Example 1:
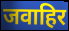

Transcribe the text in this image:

जवाहिर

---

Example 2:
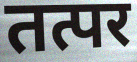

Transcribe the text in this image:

तत्पर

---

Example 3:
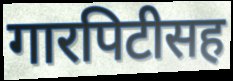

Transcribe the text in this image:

गारपिटीसह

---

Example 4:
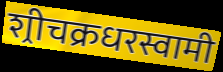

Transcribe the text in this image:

श्रीचक्रधरस्वामी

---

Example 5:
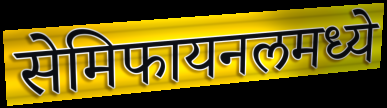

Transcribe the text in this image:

सेमिफायनलमध्ये